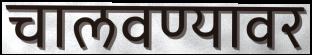
चालवण्यावर